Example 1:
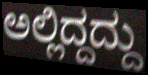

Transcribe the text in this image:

ಅಲ್ಲಿದ್ದದ್ದು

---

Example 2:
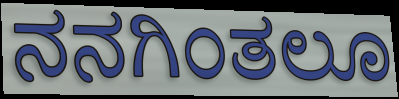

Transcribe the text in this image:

ನನಗಿಂತಲೂ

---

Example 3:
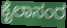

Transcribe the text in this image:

ಕೈಲಾಸಂರ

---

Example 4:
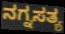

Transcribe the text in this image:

ನಗ್ನಸತ್ಯ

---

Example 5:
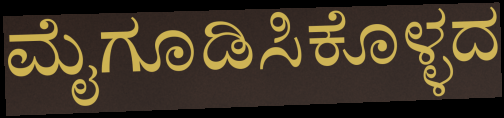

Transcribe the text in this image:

ಮೈಗೂಡಿಸಿಕೊಳ್ಳದ